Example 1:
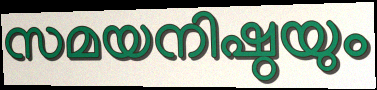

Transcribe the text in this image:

സമയനിഷ്ഠയും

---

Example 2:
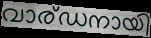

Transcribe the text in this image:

വാര്ഡനായി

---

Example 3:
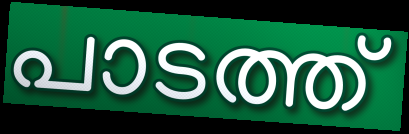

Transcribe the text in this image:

പാടത്ത്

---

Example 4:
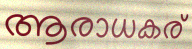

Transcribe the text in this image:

ആരാധകര്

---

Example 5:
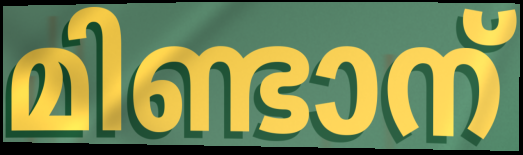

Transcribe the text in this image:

മിണ്ടാന്